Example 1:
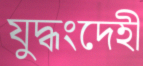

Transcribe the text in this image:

যুদ্ধংদেহী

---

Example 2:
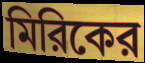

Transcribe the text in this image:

মিরিকের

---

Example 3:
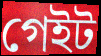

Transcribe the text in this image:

গেইট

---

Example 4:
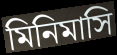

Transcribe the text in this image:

মিনিমাসি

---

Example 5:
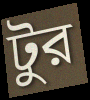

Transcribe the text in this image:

টুর